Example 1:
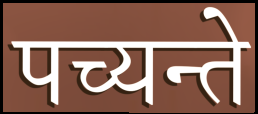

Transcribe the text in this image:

पच्यन्ते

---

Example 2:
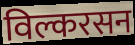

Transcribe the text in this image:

विल्करसन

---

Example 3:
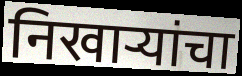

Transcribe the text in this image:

निखार्‍यांचा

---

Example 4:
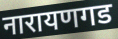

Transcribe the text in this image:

नारायणगड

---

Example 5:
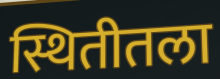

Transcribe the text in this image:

स्थितीतला